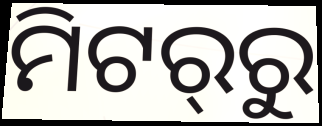
ମିଟର୍‍ରୁ